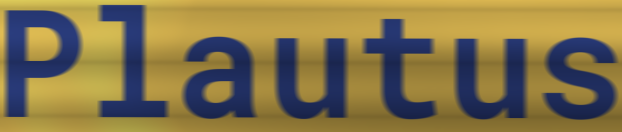
Plautus